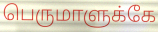
பெருமாளுக்கே